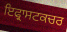
ਇਫ੍ਰਾਸਟਕਚਰ